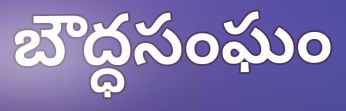
బౌద్ధసంఘం